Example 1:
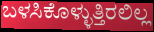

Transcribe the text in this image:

ಬಳಸಿಕೊಳ್ಳುತ್ತಿರಲಿಲ್ಲ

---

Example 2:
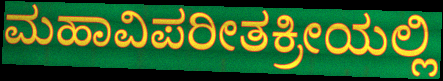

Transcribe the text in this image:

ಮಹಾವಿಪರೀತಕ್ರೀಯಲ್ಲಿ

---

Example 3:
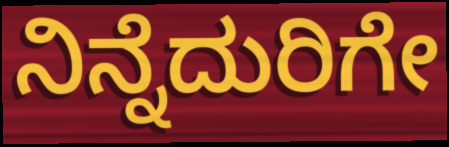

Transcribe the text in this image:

ನಿನ್ನೆದುರಿಗೇ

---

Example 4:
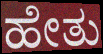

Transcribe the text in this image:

ಹೇತು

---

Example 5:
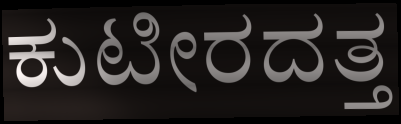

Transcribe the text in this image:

ಕುಟೀರದತ್ತ